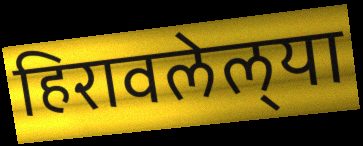
हिरावलेल्या